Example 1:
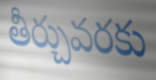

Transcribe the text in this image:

తీర్చువరకు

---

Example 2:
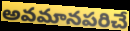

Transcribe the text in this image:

అవమానపరిచే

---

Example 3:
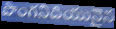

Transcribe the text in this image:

పొంగనిదియునైన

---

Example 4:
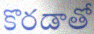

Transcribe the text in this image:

కొరడాతో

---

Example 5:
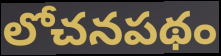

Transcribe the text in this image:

లోచనపథం